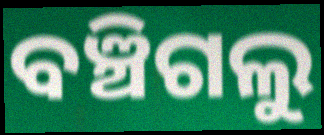
ବଞ୍ଚିଗଲୁ